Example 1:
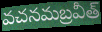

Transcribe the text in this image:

వచనమబ్రవీత్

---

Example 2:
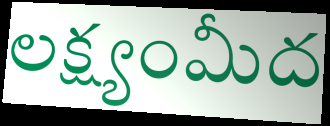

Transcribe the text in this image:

లక్ష్యంమీద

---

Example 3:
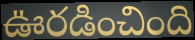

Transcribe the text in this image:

ఊరడించింది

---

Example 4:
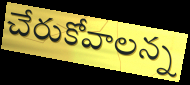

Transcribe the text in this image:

చేరుకోవాలన్న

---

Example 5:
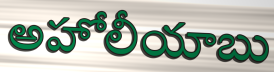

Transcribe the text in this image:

అహోలీయాబు